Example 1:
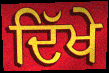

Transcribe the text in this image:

ਦਿੱਖੇ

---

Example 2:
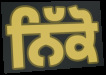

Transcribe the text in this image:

ਨਿੱਕੋ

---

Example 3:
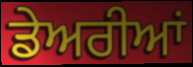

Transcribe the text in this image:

ਡੇਅਰੀਆਂ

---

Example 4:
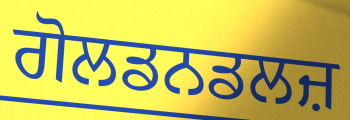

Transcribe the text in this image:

ਗੋਲਡਨਡਲਜ਼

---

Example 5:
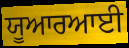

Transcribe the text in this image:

ਯੂਆਰਆਈ